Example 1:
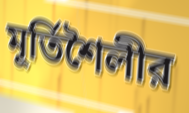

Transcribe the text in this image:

মূর্তিশৈলীর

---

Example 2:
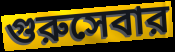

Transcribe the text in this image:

গুরুসেবার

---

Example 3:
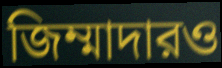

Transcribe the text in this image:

জিম্মাদারও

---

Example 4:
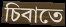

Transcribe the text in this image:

চিবাতে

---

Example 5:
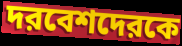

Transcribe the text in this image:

দরবেশদেরকে